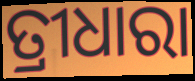
ତ୍ରୀଧାରା